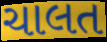
ચાલત